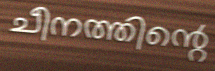
ചീനത്തിന്റെ